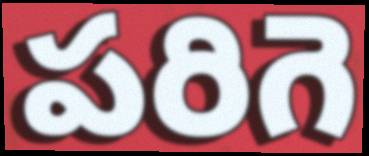
పరిగె